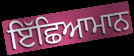
ਇੱਛਿਆਮਾਨ